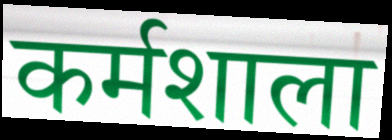
कर्मशाला